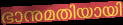
ഭാനുമതിയായി